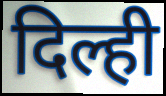
दिल्ही